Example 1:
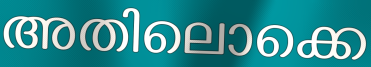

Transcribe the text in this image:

അതിലൊക്കെ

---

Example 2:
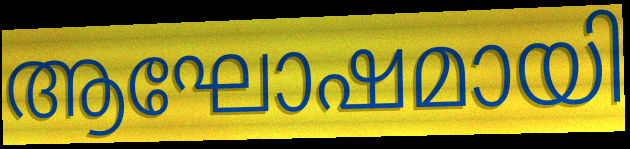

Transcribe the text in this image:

ആഘോഷമായി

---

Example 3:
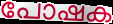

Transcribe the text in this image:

പോഷക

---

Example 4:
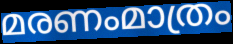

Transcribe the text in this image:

മരണംമാത്രം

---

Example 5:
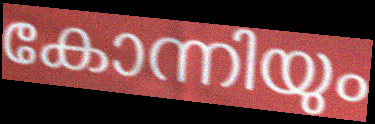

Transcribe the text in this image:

കോന്നിയും